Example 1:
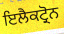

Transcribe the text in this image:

ਇਲੈਕਟ੍ਰੋਨ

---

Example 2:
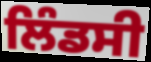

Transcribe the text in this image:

ਲਿੰਡਸੀ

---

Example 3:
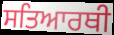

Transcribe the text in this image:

ਸਤਿਆਰਥੀ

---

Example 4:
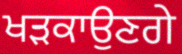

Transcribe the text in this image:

ਖੜਕਾਉਣਗੇ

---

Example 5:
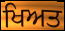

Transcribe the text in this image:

ਖਿਅਤ